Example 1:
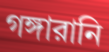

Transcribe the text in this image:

গঙ্গারানি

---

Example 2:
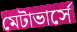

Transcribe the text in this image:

মেটাভার্সে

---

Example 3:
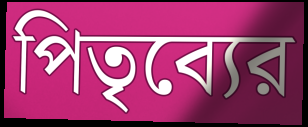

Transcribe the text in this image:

পিতৃব্যের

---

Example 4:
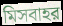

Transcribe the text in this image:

মিসবাহর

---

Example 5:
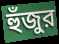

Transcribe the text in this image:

হুঁজুর